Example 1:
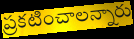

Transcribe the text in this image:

ప్రకటించాలన్నారు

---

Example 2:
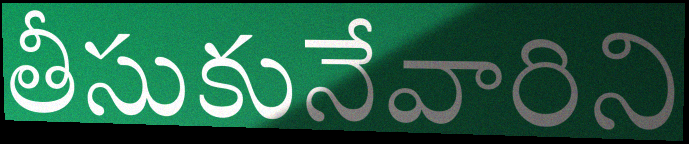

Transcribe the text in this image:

తీసుకునేవారిని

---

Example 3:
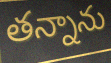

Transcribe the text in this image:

తన్నాను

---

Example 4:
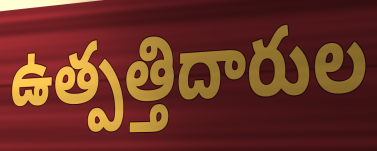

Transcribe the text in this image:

ఉత్పత్తిదారుల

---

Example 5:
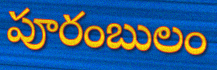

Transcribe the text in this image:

పూరంబులం